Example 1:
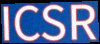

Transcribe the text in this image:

ICSR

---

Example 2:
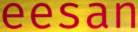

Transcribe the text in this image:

eesan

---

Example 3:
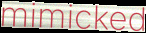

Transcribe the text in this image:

mimicked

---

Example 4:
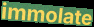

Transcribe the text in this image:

immolate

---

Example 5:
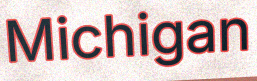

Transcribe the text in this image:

Michigan